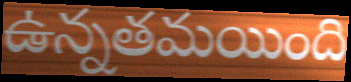
ఉన్నతమయింది